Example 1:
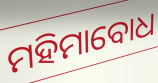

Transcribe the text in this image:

ମହିମାବୋଧ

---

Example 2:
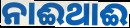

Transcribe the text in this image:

ନାଈଥାଈ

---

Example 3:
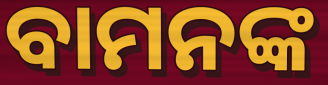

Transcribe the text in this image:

ବାମନଙ୍କ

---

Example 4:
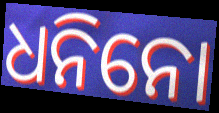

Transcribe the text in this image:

ଧନିନୋ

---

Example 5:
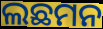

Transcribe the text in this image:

ଲଛମନ